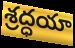
శ్రద్ధయా